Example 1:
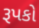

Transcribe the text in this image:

રૂપકો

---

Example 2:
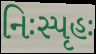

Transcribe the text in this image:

નિઃસ્પૃહઃ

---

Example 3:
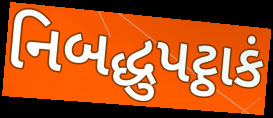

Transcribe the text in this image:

નિબદ્ધુપટ્ઠાકં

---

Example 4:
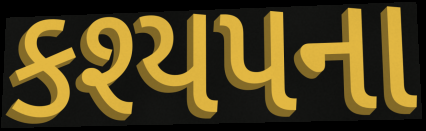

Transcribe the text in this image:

કશ્યપના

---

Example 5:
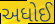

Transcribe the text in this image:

અધોઈ